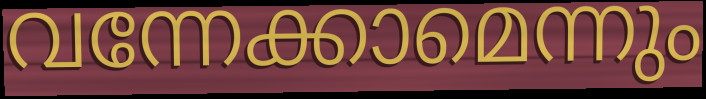
വന്നേക്കാമെന്നും